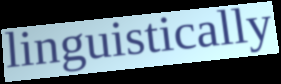
linguistically